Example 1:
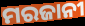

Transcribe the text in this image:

ମରଜାନୀ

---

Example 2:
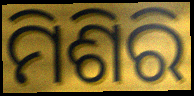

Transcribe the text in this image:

ମିଶିରି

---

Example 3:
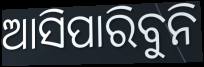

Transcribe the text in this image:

ଆସିପାରିବୁନି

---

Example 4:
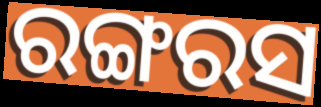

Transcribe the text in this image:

ରଙ୍ଗରସ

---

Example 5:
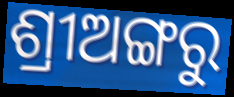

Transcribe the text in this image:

ଶ୍ରୀଅଙ୍ଗରୁ